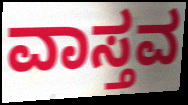
ವಾಸ್ತವ